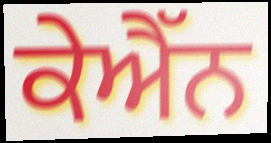
ਕੇਐੱਨ